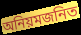
অনিয়মজনিত